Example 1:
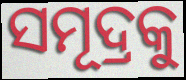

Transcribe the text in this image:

ସମୂଦ୍ରକୁ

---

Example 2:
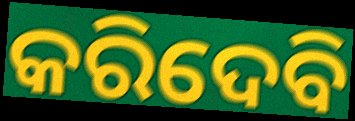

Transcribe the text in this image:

କରିଦେବି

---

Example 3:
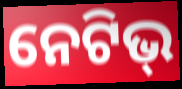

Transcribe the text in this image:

ନେଟିଭ୍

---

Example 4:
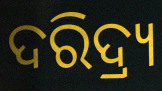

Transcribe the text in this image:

ଦରିଦ୍ର୍ୟ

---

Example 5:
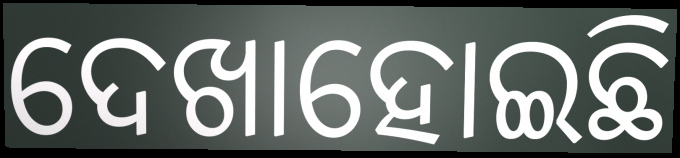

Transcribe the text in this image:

ଦେଖାହୋଇଛି